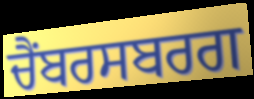
ਚੈਂਬਰਸਬਰਗ